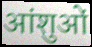
आंशुओं